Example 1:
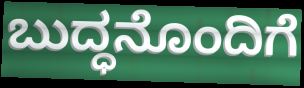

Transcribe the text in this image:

ಬುದ್ಧನೊಂದಿಗೆ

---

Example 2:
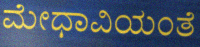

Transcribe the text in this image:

ಮೇಧಾವಿಯಂತೆ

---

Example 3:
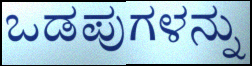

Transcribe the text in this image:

ಒಡಪುಗಳನ್ನು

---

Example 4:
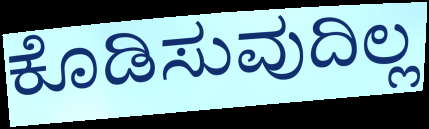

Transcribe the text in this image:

ಕೊಡಿಸುವುದಿಲ್ಲ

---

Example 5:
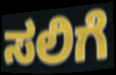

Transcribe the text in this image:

ಸಲಿಗೆ